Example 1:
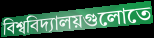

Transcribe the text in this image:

বিশ্ববিদ্যালয়গুলোতে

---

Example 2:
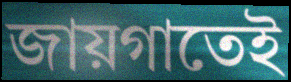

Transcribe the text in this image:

জায়গাতেই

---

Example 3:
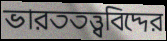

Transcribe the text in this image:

ভারততত্ত্ববিদ্দের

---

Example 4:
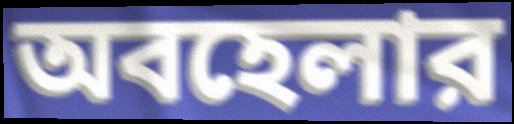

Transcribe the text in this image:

অবহেলার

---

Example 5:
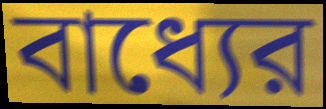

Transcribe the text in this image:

বাধ্যের